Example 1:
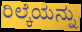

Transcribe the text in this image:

ರಿಲ್ಕೆಯನ್ನು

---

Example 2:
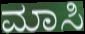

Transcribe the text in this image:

ಮಾಸಿ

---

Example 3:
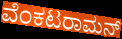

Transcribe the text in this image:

ವೆಂಕಟರಾಮನ್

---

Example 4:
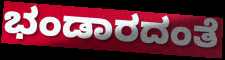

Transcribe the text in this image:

ಭಂಡಾರದಂತೆ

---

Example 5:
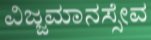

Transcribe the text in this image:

ವಿಜ್ಜಮಾನಸ್ಸೇವ